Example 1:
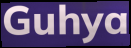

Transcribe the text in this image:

Guhya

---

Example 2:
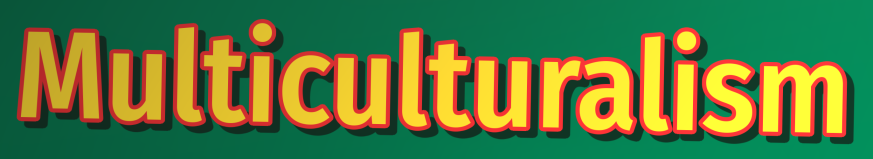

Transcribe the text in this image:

Multiculturalism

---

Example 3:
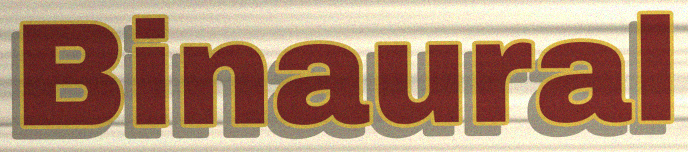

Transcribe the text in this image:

Binaural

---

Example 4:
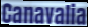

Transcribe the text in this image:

Canavalia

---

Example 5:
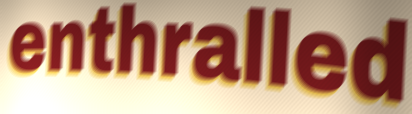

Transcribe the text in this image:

enthralled